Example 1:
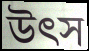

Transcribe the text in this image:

উৎস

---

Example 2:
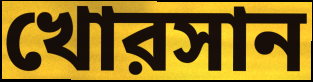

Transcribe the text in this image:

খোরসান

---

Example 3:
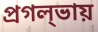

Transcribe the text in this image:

প্রগল্‌ভায়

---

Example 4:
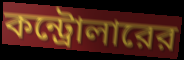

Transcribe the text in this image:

কন্ট্রোলারের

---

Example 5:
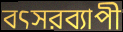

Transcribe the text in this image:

বৎসরব্যাপী